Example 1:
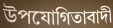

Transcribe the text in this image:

উপযোগিতাবাদী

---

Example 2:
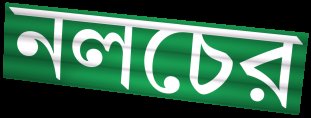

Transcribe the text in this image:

নলচের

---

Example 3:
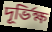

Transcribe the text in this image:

দূর্ভিক্ষ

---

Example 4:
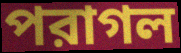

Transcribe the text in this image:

পরাগল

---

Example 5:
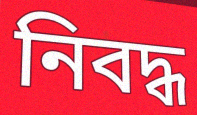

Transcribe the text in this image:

নিবদ্ধ